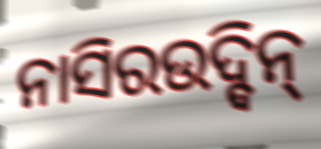
ନାସିରଉଦ୍ଦିନ୍